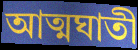
আত্মঘাতী